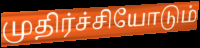
முதிர்ச்சியோடும்